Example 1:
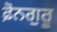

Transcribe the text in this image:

ਫ਼ੋਨਗੁਰੂ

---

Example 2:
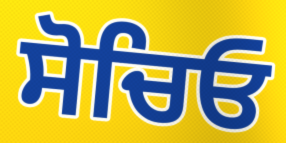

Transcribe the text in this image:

ਸੋਚਿਓ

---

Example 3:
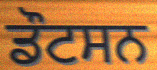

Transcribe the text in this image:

ਡੌਟਸਨ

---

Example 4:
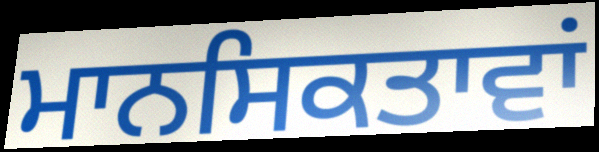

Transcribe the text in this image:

ਮਾਨਸਿਕਤਾਵਾਂ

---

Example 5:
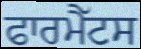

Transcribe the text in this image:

ਫਾਰਮੈੱਟਸ